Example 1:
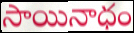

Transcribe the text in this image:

సాయినాధం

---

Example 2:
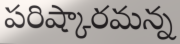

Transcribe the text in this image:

పరిష్కారమన్న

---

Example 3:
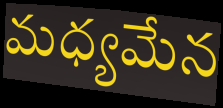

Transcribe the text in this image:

మధ్యమేన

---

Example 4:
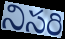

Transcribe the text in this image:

నిసరి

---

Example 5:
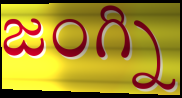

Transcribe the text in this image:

జంగ్ని